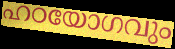
ഹഠയോഗവും